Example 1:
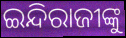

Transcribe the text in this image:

ଇନ୍ଦିରାଜୀଙ୍କୁ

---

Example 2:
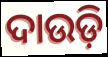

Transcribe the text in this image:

ଦାଉଡ଼ି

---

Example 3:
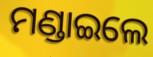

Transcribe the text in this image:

ମଣ୍ଡାଇଲେ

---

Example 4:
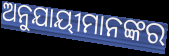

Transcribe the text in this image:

ଅନୁଯାୟୀମାନଙ୍କର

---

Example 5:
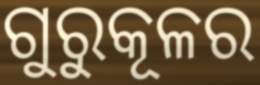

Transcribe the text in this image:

ଗୁରୁକୂଳର